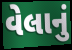
વેલાનું